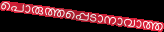
പൊരുത്തപ്പെടാനാവാത്ത